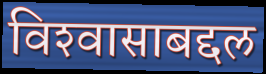
विश्वासाबद्दल